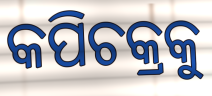
କପିଚକ୍ରକୁ